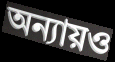
অন্যায়ও